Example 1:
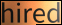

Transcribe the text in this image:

hired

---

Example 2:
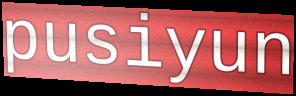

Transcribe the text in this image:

pusiyun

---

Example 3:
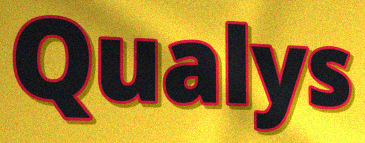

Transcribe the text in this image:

Qualys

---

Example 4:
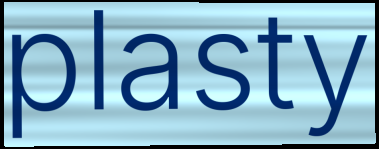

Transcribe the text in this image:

plasty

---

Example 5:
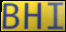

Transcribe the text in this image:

BHI